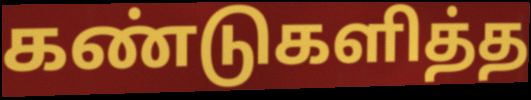
கண்டுகளித்த